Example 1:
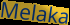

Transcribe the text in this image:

Melaka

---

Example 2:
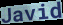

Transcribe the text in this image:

Javid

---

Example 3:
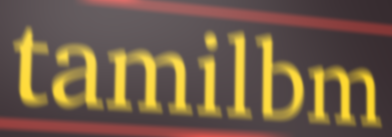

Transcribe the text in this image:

tamilbm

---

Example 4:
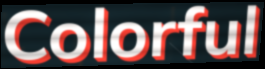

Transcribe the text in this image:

Colorful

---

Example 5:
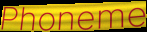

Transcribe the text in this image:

Phoneme